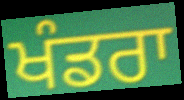
ਖੰਡਰਾ